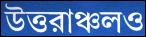
উত্তরাঞ্চলও